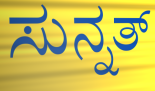
ಸುನ್ನತ್